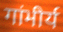
गांभीर्य